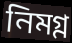
নিমগ্ন